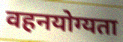
वहनयोग्यता